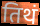
तिथं